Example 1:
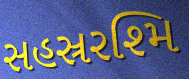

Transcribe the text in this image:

સહસ્રરશ્મિ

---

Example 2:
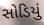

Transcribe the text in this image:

સોડિયું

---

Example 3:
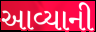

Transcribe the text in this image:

આવ્યાની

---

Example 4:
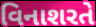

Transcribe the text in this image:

વિનાશરતે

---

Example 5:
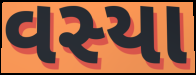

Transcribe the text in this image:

વસ્યા